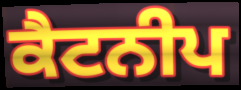
ਕੈਟਨੀਪ